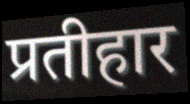
प्रतीहार